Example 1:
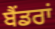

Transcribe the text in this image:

ਬੈਂਡਰਾਂ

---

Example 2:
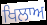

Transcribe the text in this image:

ਖਿਲਾਅ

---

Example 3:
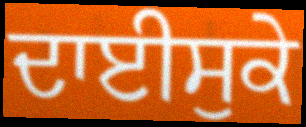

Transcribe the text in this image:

ਦਾਈਸੁਕੇ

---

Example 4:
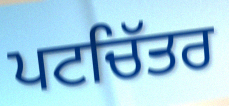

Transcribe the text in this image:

ਪਟਚਿੱਤਰ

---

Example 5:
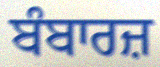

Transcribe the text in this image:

ਬੰਬਾਰਜ਼